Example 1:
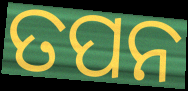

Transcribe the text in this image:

ତପନ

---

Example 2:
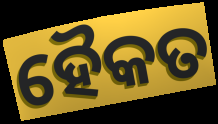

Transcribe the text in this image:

ହୈକତ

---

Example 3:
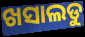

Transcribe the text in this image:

ଖସାଲଡୁ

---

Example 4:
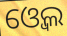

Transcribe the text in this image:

ଓ୍ବେଲ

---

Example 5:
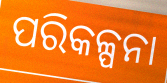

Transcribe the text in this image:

ପରିକଳ୍ପନା